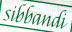
sibbandi